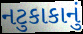
નટુકાકાનું